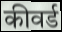
कीवर्ड